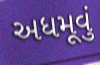
અધમૂવું